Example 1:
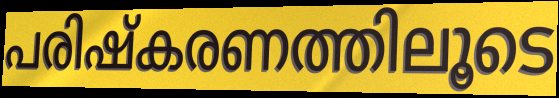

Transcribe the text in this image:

പരിഷ്കരണത്തിലൂടെ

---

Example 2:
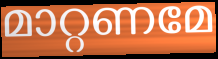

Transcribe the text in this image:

മാറ്റണമേ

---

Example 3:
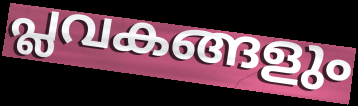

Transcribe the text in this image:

പ്ലവകങ്ങളും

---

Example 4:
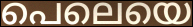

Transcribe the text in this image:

പെലെയെ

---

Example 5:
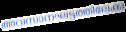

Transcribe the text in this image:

അവസാനഘട്ടത്തിലേക്കു